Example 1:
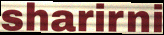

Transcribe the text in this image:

sharirni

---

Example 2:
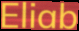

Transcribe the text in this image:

Eliab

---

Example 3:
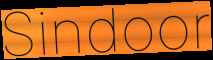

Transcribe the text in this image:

Sindoor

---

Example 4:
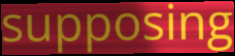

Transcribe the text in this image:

supposing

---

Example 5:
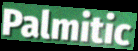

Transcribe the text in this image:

Palmitic